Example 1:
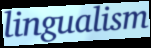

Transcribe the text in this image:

lingualism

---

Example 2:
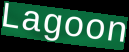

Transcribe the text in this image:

Lagoon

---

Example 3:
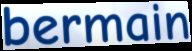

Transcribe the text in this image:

bermain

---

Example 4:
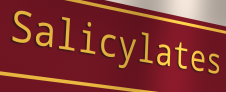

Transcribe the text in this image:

Salicylates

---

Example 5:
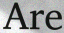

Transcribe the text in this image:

Are